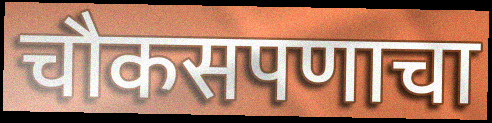
चौकसपणाचा